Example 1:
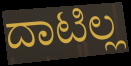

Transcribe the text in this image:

ದಾಟಿಲ್ಲ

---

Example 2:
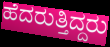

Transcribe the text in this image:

ಹೆದರುತ್ತಿದ್ದರು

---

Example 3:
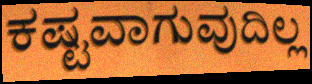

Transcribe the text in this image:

ಕಷ್ಟವಾಗುವುದಿಲ್ಲ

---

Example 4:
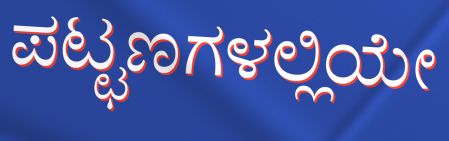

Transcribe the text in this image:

ಪಟ್ಟಣಗಳಲ್ಲಿಯೇ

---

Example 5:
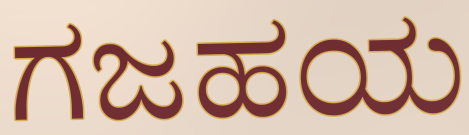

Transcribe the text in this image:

ಗಜಹಯ